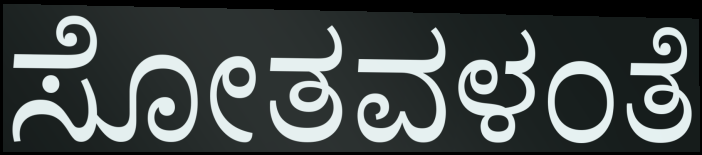
ಸೋತವಳಂತೆ